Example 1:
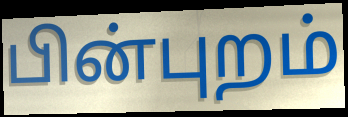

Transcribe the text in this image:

பின்புறம்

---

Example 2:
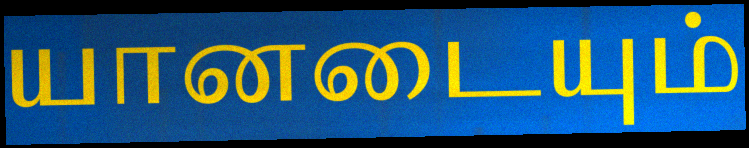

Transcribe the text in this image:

யானடையும்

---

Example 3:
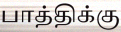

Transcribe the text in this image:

பாத்திக்கு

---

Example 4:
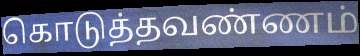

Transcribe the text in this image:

கொடுத்தவண்ணம்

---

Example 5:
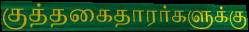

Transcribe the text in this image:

குத்தகைதாரர்களுக்கு